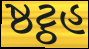
ષ્ઠટ્ઠહ